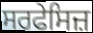
ਸਰਫੇਸਿਜ਼